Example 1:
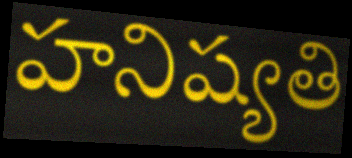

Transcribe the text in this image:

హనిష్యతి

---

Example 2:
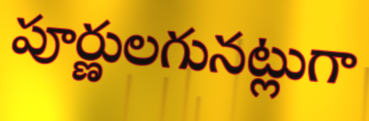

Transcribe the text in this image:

పూర్ణులగునట్లుగా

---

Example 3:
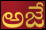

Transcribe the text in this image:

అజే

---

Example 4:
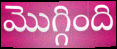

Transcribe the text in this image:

మొగ్గింది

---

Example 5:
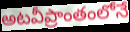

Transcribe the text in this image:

అటవీప్రాంతంలోనే